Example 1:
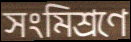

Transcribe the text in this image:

সংমিশ্রণে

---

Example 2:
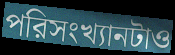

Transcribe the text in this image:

পরিসংখ্যানটাও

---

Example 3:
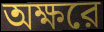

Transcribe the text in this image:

অক্ষরে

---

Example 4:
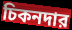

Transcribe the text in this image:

চিকনদার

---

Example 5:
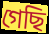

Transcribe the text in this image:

গেছি